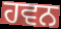
ਹਵਨ